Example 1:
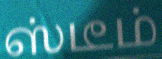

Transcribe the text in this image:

ஸ்டீம்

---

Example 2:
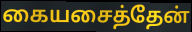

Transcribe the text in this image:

கையசைத்தேன்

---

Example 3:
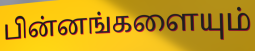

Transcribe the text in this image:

பின்னங்களையும்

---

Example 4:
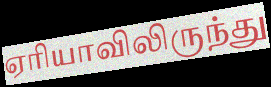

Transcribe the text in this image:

ஏரியாவிலிருந்து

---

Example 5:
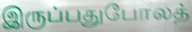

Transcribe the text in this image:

இருப்பதுபோலத்